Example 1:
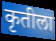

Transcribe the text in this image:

कृतीला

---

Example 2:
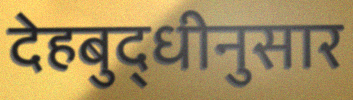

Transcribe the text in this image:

देहबुद्धीनुसार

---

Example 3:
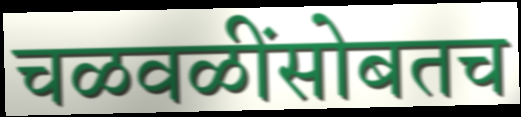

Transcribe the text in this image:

चळवळींसोबतच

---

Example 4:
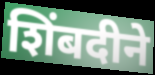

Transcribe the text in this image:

शिंबदीने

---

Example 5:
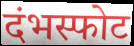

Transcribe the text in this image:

दंभस्फोट